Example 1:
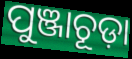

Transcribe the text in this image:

ପୁଞ୍ଜାଚୂଡ଼ା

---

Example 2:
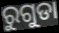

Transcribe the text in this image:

ରୁଗୁଡା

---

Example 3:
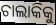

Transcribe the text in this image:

ଚାଲାକିକୁ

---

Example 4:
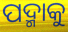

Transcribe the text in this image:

ପଦ୍ମାକୁ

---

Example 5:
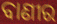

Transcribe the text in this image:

ବାଣୀର